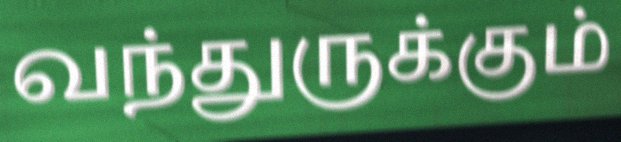
வந்துருக்கும்